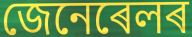
জেনেৰেলৰ